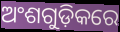
ଅଂଶଗୁଡ଼ିକରେ